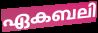
ഏകബലി